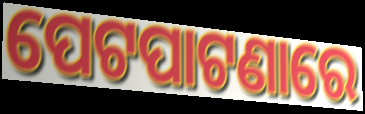
ପେଟପାଟଣାରେ